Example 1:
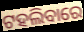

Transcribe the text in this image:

ଟହଲିବାରେ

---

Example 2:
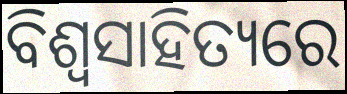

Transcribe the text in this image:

ବିଶ୍ବସାହିତ୍ୟରେ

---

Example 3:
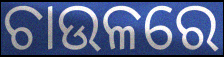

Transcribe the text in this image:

ଚାଉଳରେ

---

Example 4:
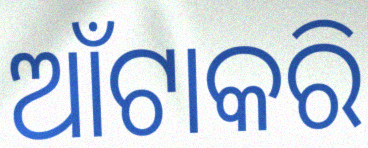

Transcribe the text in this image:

ଆଁଟାକରି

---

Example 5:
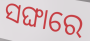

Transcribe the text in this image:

ସଙ୍ଘାରେ